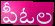
పీఓల